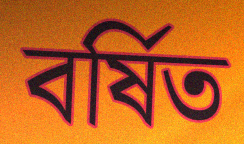
বর্ষিত